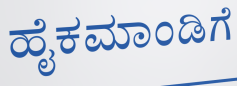
ಹೈಕಮಾಂಡಿಗೆ